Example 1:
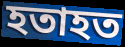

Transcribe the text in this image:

হতাহত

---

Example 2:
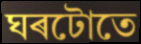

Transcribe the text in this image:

ঘৰটোতে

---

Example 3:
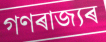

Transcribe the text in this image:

গণৰাজ্যৰ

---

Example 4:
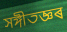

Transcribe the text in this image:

সঙ্গীতজ্ঞৰ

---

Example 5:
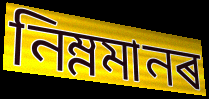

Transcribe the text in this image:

নিম্নমানৰ